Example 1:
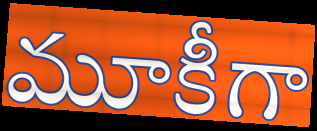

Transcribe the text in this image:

మూకీగా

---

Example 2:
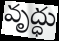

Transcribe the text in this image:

వృద్ధు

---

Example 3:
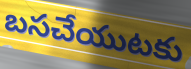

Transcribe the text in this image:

బసచేయుటకు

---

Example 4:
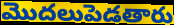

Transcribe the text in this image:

మొదలుపెడతారు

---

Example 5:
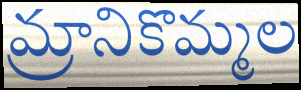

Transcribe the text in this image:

మ్రానికొమ్మల